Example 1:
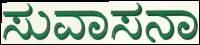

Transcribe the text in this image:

ಸುವಾಸನಾ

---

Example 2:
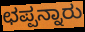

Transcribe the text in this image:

ಛಪ್ಪನ್ನಾರು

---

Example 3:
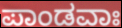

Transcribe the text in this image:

ಪಾಂಡವಾಃ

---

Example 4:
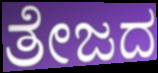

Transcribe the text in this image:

ತೇಜದ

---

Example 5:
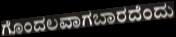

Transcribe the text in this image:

ಗೊಂದಲವಾಗಬಾರದೆಂದು